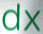
dx